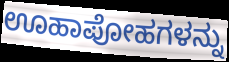
ಊಹಾಪೋಹಗಳನ್ನು